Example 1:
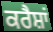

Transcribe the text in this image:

ਕਰੈਸ਼ਾਂ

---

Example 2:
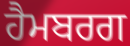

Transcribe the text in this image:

ਹੈਮਬਰਗ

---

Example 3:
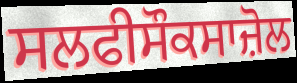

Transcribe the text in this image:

ਸਲਫੀਸੌਕਸਾਜ਼ੋਲ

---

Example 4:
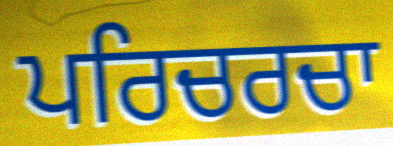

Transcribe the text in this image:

ਪਰਿਚਰਚਾ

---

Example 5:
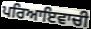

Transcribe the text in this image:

ਪਰਿਆਇਵਾਚੀ